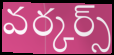
వర్కర్స్